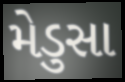
મેડુસા